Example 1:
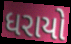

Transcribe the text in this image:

ધરાયો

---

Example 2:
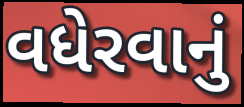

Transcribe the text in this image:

વધેરવાનું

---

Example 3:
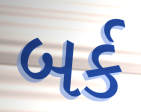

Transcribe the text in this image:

બર્ક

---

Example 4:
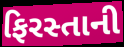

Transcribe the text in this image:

ફિરસ્તાની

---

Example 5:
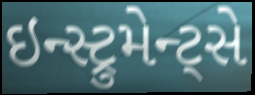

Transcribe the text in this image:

ઇન્સ્ટ્રુમેન્ટ્સે